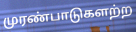
முரண்பாடுகளற்ற